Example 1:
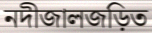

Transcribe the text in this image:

নদীজালজড়িত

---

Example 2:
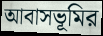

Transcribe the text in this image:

আবাসভূমির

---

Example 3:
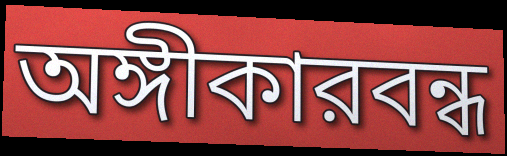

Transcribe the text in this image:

অঙ্গীকারবন্ধ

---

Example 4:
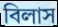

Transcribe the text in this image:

বিলাস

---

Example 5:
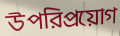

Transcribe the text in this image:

উপরিপ্রয়োগ